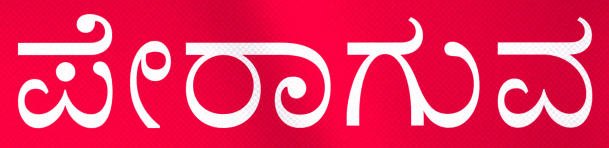
ಪೇರಾಗುವ